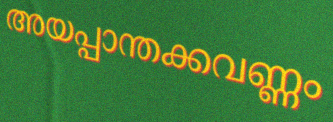
അയപ്പാന്തക്കവണ്ണം